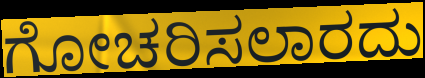
ಗೋಚರಿಸಲಾರದು